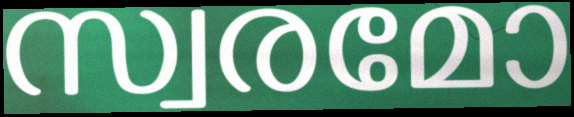
സ്വരമോ